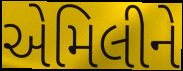
એમિલીને